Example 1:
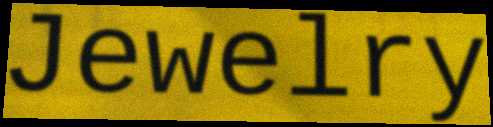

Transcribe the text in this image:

Jewelry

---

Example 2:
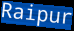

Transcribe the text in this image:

Raipur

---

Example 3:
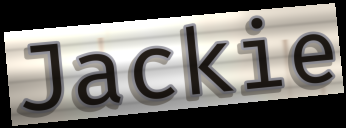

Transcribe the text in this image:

Jackie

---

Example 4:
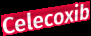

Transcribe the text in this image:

Celecoxib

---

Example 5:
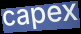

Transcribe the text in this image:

capex